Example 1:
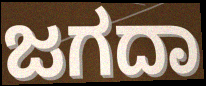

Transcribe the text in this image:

ಜಗದಾ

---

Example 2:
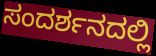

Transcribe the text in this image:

ಸಂದರ್ಶನದಲ್ಲಿ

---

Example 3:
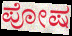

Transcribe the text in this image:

ಪೋಷ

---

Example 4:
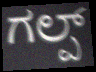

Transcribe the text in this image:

ಗಲ್ಪ್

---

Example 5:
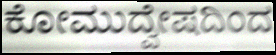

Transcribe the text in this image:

ಕೋಮುದ್ವೇಷದಿಂದ